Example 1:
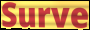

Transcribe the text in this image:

Surve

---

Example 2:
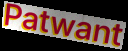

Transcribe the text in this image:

Patwant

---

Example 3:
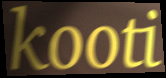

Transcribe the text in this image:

kooti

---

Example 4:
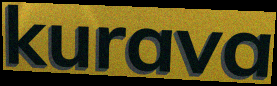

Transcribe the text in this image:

kurava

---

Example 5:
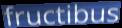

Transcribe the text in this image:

fructibus